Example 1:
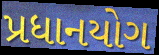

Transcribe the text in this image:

પ્રધાનયોગ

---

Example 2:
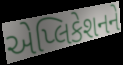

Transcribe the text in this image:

એપ્લિકેશનને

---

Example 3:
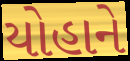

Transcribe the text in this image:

યોહાને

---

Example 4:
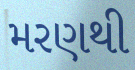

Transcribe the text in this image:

મરણથી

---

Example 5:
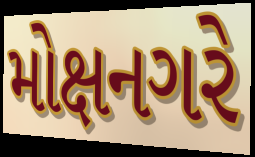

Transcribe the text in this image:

મોક્ષનગરે